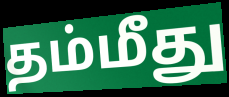
தம்மீது